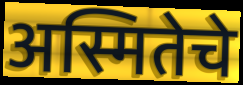
अस्मितेचे